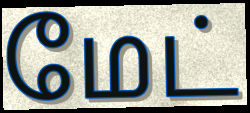
மேட்